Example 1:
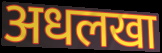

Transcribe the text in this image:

अधलखा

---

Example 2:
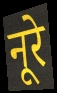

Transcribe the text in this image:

नूरे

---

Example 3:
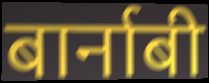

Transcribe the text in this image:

बार्नाबी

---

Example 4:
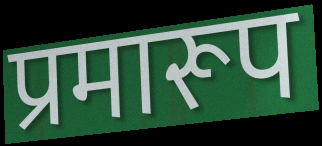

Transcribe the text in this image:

प्रमारूप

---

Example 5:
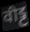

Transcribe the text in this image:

वीड्ट